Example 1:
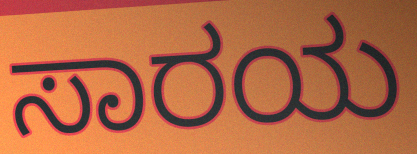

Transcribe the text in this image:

ಸಾರಯ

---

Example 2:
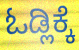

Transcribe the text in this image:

ಓಡ್ಲಿಕ್ಕೆ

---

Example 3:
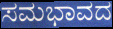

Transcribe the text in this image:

ಸಮಭಾವದ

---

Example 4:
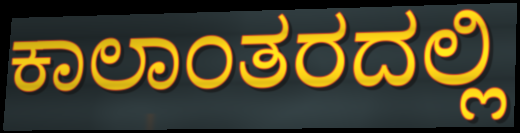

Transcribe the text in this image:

ಕಾಲಾಂತರದಲ್ಲಿ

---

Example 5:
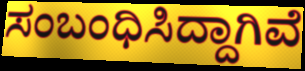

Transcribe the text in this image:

ಸಂಬಂಧಿಸಿದ್ದಾಗಿವೆ